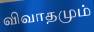
விவாதமும்